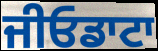
ਜੀਓਡਾਟਾ